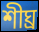
শীঘ্র